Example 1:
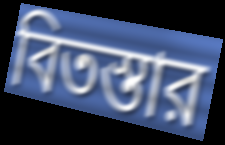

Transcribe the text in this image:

বিতস্তার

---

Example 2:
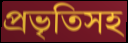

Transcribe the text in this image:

প্রভৃতিসহ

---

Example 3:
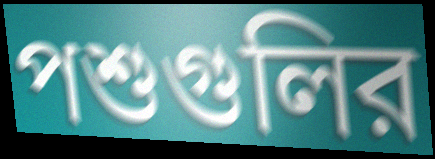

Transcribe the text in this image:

পশুগুলির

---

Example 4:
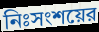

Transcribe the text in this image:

নিঃসংশয়ের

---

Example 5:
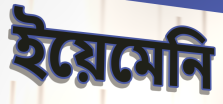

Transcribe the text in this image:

ইয়েমেনি